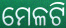
ମେଳଟି